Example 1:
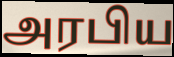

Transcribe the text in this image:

அரபிய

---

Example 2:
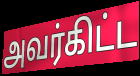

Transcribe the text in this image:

அவர்கிட்ட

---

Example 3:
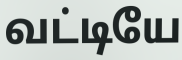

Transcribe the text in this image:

வட்டியே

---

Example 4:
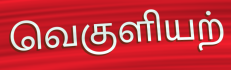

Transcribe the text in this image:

வெகுளியற்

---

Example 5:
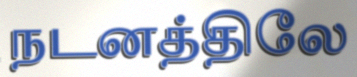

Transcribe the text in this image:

நடனத்திலே